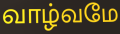
வாழ்வமே